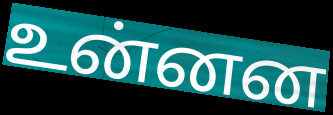
உன்னன